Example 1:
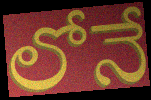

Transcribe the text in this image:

లోనే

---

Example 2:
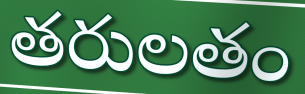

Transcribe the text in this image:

తరులతం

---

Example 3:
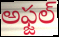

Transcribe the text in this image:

అఫ్జల్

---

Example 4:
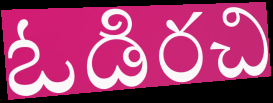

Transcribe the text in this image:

ఓడిరచి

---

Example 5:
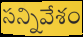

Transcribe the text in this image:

సన్నివేశం